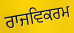
ਰਾਜਵਿਕਰਮ